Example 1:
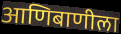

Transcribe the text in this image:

आणिबाणीला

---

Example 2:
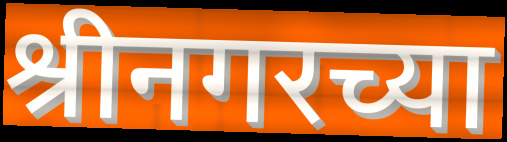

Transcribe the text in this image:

श्रीनगरच्या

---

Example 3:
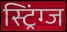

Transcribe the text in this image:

स्ट्रिंग्ज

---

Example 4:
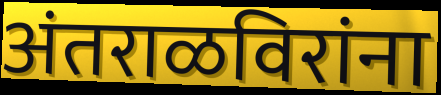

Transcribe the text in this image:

अंतराळविरांना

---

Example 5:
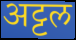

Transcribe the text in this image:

अट्टल